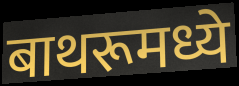
बाथरूमध्ये